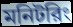
মনিটরিং